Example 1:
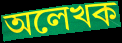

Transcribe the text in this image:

অলেখক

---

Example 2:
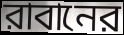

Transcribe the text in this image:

রাবানের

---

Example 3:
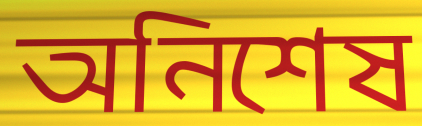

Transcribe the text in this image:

অনিশেষ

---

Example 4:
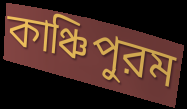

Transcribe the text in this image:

কাঞ্চিপুরম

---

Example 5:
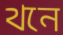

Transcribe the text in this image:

থনে